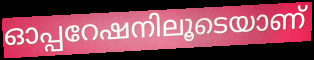
ഓപ്പറേഷനിലൂടെയാണ്